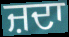
ਜ਼ਦਾ